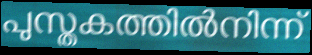
പുസ്തകത്തിൽനിന്ന്